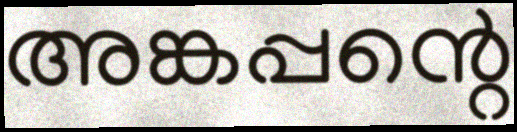
അങ്കപ്പന്റെ